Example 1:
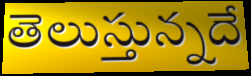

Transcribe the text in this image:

తెలుస్తున్నదే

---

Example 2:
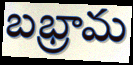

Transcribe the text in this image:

బభ్రామ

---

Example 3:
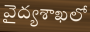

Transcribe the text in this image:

వైద్యశాఖలో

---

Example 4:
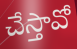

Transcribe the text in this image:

చేస్తావో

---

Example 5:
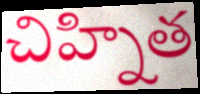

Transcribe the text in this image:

చిహ్నిత